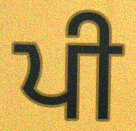
ਪੀ